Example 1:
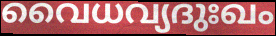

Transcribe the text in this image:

വൈധവ്യദുഃഖം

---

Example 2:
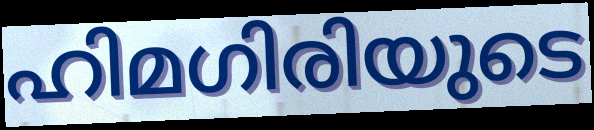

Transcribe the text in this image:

ഹിമഗിരിയുടെ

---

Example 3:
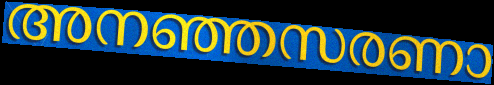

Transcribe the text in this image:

അനഞ്ഞസരണാ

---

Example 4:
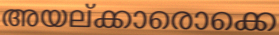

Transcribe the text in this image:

അയല്ക്കാരൊക്കെ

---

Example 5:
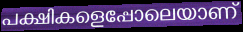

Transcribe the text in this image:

പക്ഷികളെപ്പോലെയാണ്